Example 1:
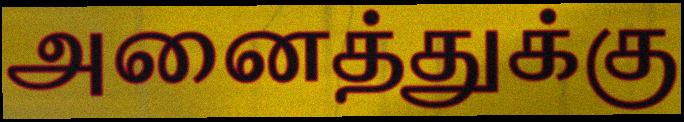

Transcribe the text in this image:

அனைத்துக்கு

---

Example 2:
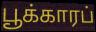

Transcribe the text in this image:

பூக்காரப்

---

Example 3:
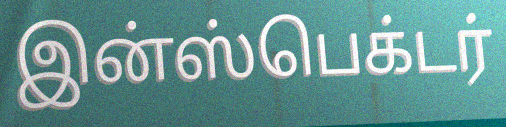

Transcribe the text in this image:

இன்ஸ்பெக்டர்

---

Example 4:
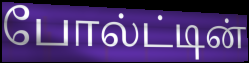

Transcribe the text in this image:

போல்ட்டின்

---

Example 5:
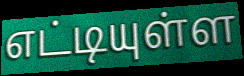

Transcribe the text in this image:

எட்டியுள்ள